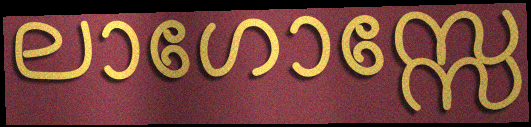
ലാഗോസ്സേ